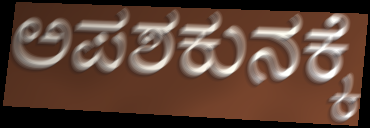
ಅಪಶಕುನಕ್ಕೆ